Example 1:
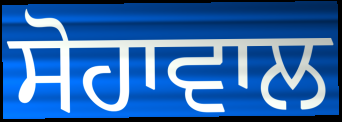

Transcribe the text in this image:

ਸੋਹਾਵਾਲ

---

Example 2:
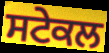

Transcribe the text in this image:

ਸਟੇਕਲ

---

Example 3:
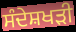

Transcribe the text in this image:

ਸੰਦੇਸ਼ਖੜੀ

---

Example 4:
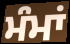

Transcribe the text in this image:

ਮੰਮਾਂ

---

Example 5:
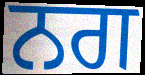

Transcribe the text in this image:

ਨਗ